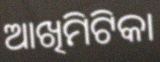
ଆଖିମିଟିକା